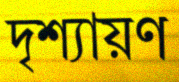
দৃশ্যায়ণ